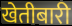
खेतीबारी